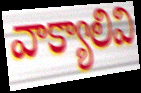
వాక్యాలివి